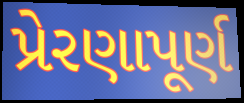
પ્રેરણાપૂર્ણ